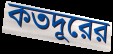
কতদূরের